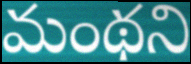
మంథని